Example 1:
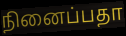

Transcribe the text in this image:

நினைப்பதா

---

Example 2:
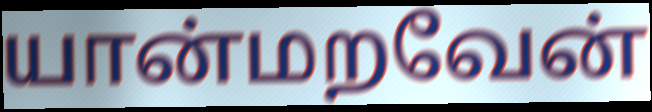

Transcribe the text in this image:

யான்மறவேன்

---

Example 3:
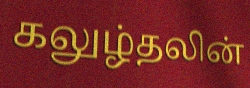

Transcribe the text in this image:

கலுழ்தலின்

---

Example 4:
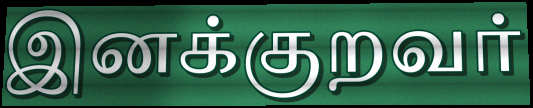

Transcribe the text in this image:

இனக்குறவர்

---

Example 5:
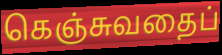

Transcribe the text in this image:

கெஞ்சுவதைப்